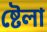
ষ্টেলা